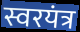
स्वरयंत्र